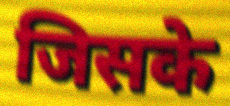
जिसके